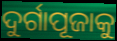
ଦୁର୍ଗାପୂଜାକୁ